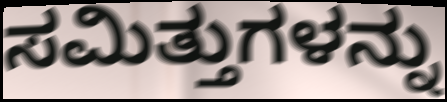
ಸಮಿತ್ತುಗಳನ್ನು